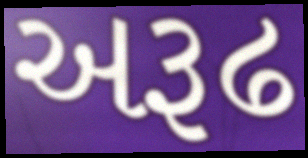
અરૂઢ